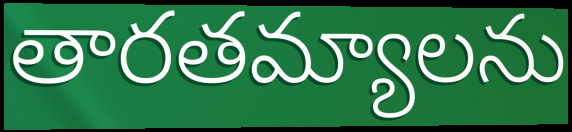
తారతమ్యాలను